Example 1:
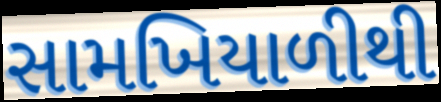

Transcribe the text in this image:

સામખિયાળીથી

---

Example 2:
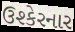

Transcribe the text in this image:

ઉશ્કેરનાર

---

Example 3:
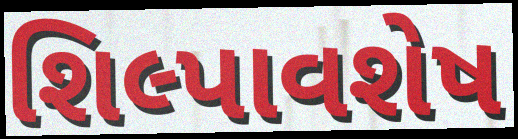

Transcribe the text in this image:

શિલ્પાવશેષ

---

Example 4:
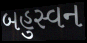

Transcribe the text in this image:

બહુસ્વન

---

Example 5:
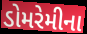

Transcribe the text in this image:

ડોમરેમીના